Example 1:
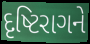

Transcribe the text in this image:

દૃષ્ટિરાગને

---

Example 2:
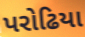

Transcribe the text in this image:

પરોઢિયા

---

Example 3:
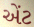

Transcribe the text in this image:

એંટ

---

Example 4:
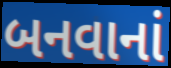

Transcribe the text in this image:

બનવાનાં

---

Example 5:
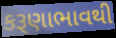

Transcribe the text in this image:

કરૂણાભાવથી